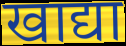
खाद्या